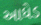
આધેડ